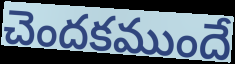
చెందకముందే